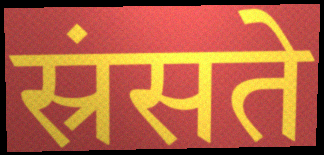
स्रंसते